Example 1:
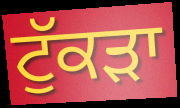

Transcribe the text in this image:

ਟੁੱਕੜਾ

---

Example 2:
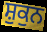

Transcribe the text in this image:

ਸ਼ੁਕੁਨ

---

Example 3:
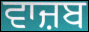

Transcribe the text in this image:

ਵਾਜ਼ਬ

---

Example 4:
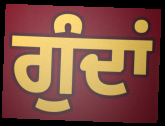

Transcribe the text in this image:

ਗੁੰਦਾਂ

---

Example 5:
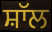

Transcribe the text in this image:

ਸ਼ਾੱਲ